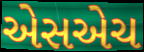
એસએચ